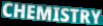
CHEMISTRY